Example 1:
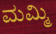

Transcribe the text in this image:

ಮಮ್ಮಿ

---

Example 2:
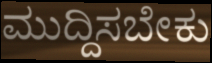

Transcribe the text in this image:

ಮುದ್ದಿಸಬೇಕು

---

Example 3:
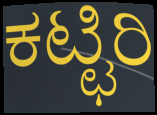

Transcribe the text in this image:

ಕಟ್ಟಿರಿ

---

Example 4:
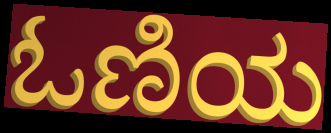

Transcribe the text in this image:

ಓಣಿಯ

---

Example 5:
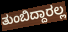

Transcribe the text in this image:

ತುಂಬಿದ್ದಾರಲ್ಲ